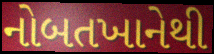
નોબતખાનેથી